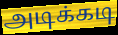
அடிக்கடி